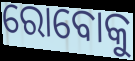
ରୋବୋକୁ